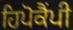
ਹਿਪੋਕੈਂਪੀ